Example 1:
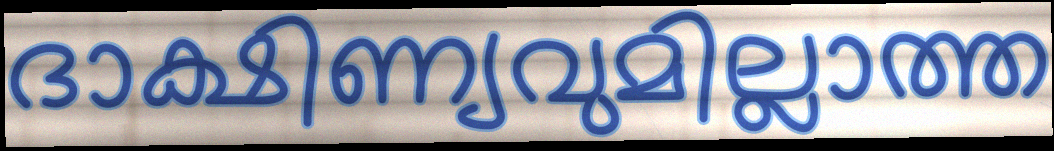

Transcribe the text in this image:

ദാക്ഷിണ്യവുമില്ലാത്ത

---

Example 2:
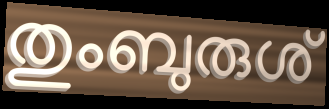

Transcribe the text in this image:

തുംബുരുശ്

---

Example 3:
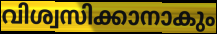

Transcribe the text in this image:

വിശ്വസിക്കാനാകും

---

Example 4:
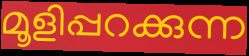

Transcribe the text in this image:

മൂളിപ്പറക്കുന്ന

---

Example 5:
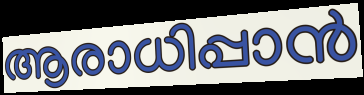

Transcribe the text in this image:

ആരാധിപ്പാൻ